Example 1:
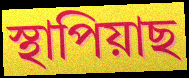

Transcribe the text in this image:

স্থাপিয়াছ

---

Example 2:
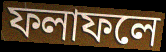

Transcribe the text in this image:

ফলাফলে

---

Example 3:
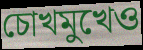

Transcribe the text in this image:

চোখমুখেও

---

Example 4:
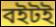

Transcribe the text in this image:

বইটই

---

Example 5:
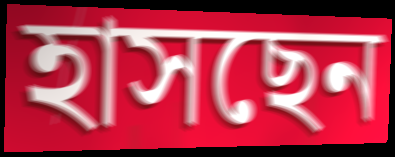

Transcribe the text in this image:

হাসছেন